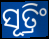
ସୂତ୍ରିଂ